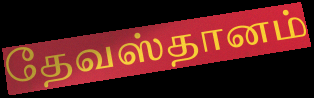
தேவஸ்தானம்